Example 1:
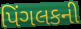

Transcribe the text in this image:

પિંગલકની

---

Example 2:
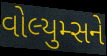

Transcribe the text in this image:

વોલ્યુમ્સને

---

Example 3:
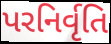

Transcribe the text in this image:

પરનિર્વૃતિ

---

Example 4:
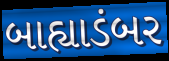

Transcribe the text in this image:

બાહ્યાડંબર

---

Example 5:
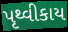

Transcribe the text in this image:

પૃથ્વીકાય